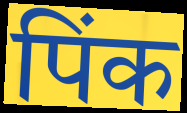
पिंक